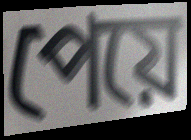
পেয়ে